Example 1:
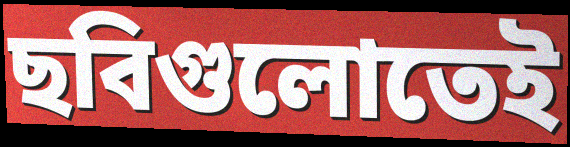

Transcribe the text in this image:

ছবিগুলোতেই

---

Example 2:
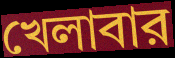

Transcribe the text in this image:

খেলাবার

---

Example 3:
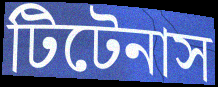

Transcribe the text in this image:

টিটেনাস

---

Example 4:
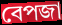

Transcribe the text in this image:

বেপজা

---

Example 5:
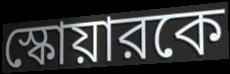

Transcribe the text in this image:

স্কোয়ারকে